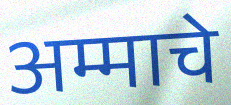
अम्माचे